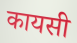
कायसी